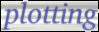
plotting